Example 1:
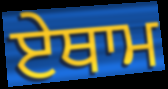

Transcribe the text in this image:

ਏਥਾਮ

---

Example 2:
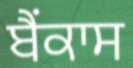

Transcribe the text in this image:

ਬੈਂਕਾਸ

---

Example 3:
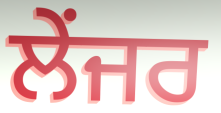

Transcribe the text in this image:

ਲੇਂਜਰ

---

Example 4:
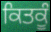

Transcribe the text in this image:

ਕਿਤਕੂੰ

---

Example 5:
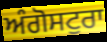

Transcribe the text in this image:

ਅੰਗੋਸਟੁਰਾ